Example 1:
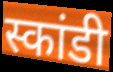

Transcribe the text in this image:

स्कांडी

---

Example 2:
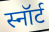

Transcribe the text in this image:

स्नॉर्ट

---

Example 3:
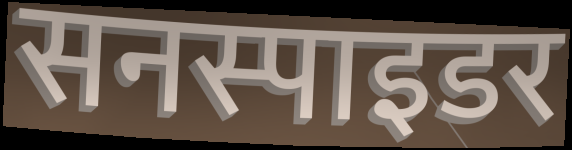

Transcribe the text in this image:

सनस्पाइडर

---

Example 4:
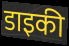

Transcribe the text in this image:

डाइकी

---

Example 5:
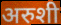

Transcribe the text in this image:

अरुशी